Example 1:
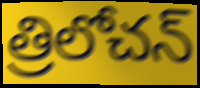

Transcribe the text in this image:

త్రిలోచన్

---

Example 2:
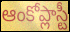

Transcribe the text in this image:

ఆంకోప్లాస్టీ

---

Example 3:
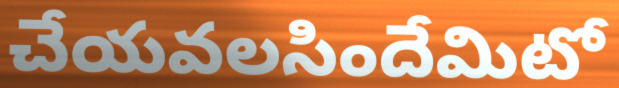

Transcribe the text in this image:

చేయవలసిందేమిటో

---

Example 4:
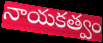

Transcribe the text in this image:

నాయకత్వం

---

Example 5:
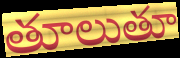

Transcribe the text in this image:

తూలుతూ